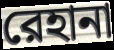
রেহানা